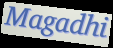
Magadhi